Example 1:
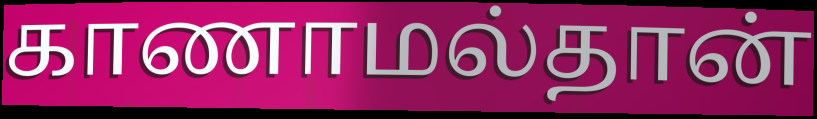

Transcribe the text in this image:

காணாமல்தான்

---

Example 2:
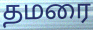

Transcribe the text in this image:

தமரை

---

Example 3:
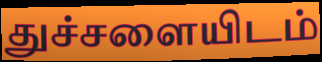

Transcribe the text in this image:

துச்சளையிடம்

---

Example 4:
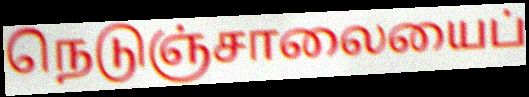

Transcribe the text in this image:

நெடுஞ்சாலையைப்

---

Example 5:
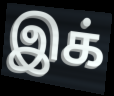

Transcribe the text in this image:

இக்